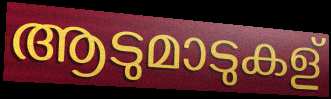
ആടുമാടുകള്